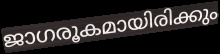
ജാഗരൂകമായിരിക്കും